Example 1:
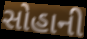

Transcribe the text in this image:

સોહાની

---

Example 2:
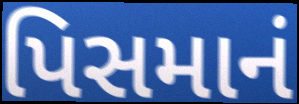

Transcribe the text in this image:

પિસમાનં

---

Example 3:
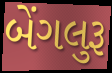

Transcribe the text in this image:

બેંગલુરૂ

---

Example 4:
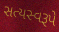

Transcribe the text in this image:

સત્યસ્વરૂપે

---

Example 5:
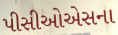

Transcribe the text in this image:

પીસીઓએસના